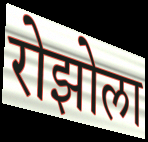
रोझोला